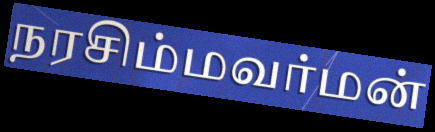
நரசிம்மவர்மன்